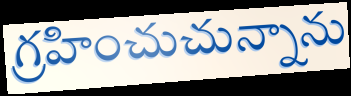
గ్రహించుచున్నాను